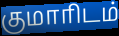
குமாரிடம்